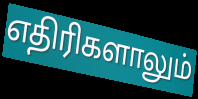
எதிரிகளாலும்